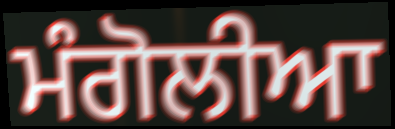
ਮੰਗੋਲੀਆ